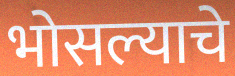
भोसल्याचे